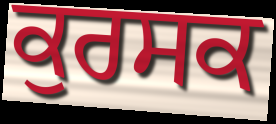
ਕੁਰਸਕ